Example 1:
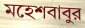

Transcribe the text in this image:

মহেশবাবুর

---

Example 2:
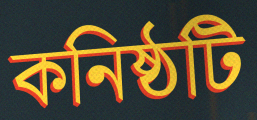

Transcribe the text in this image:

কনিষ্ঠটি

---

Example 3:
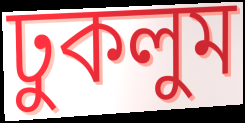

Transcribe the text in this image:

ঢুকলুম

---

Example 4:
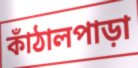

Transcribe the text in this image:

কাঁঠালপাড়া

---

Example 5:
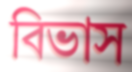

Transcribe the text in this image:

বিভাস